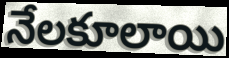
నేలకూలాయి